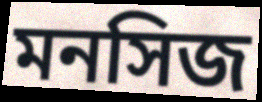
মনসিজ